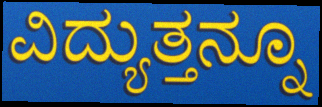
ವಿದ್ಯುತ್ತನ್ನೂ